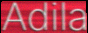
Adila